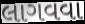
લાગવવા